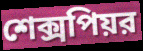
শেক্সপিয়র